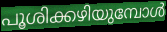
പൂശിക്കഴിയുമ്പോൾ